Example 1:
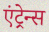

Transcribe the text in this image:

एंट्रेन्स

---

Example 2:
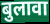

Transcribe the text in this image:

बुलावा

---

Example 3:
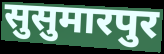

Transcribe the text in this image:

सुसुमारपुर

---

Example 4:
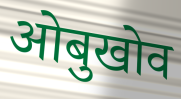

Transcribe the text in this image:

ओबुखोव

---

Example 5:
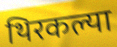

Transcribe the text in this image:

थिरकल्या